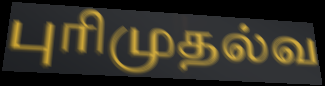
புரிமுதல்வ